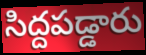
సిద్దపడ్డారు